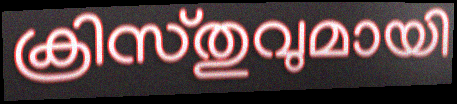
ക്രിസ്തുവുമായി